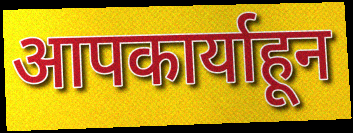
आपकार्याहून